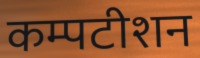
कम्पटीशन